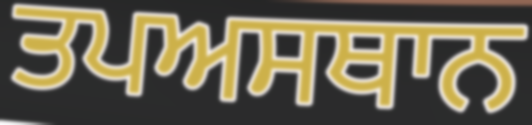
ਤਪਅਸਥਾਨ